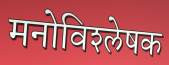
मनोविश्लेषक